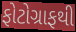
ફોટોગ્રાફથી